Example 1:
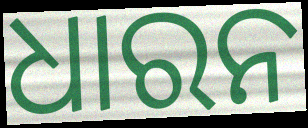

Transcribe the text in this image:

ଧାରନ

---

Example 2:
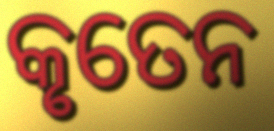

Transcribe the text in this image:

କୃତେନ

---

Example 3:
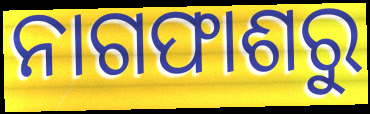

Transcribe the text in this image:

ନାଗଫାଶରୁ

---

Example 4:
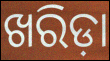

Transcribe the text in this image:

ଖରିଡ଼ା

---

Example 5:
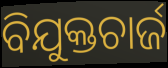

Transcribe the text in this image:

ବିଯୁକ୍ତଚାର୍ଜ